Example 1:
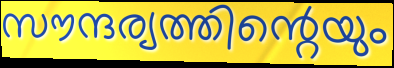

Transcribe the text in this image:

സൗന്ദര്യത്തിന്റെയും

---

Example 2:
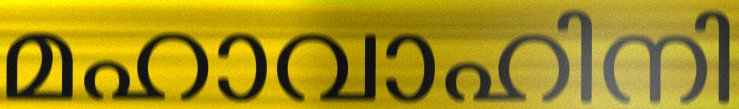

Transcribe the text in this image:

മഹാവാഹിനി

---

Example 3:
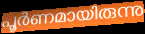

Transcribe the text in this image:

പൂർണമായിരുന്നു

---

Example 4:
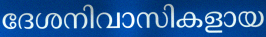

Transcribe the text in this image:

ദേശനിവാസികളായ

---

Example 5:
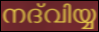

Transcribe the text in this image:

നദ്‌വിയ്യ